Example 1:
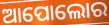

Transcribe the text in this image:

ଆପୋଲୋର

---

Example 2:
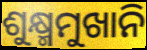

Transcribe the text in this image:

ଶୁକ୍ଷ୍ମମୁଖାନି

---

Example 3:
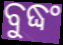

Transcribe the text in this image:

ବୁଦ୍ଧଂ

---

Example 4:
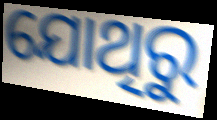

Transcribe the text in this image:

ଯୋଥିରୁ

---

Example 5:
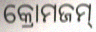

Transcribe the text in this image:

କ୍ରୋମଜମ୍